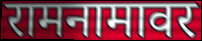
रामनामावर